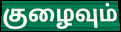
குழைவும்